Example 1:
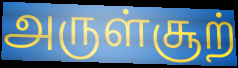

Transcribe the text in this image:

அருள்சூற்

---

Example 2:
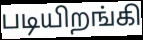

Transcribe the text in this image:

படியிறங்கி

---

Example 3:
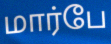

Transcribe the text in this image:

மார்பே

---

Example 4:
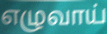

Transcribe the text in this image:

எழுவாய்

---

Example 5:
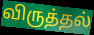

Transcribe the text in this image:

விருத்தல்